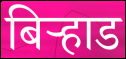
बिर्‍हाड